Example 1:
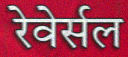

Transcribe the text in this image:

रेवेर्सल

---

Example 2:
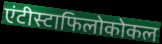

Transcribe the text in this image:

एंटीस्टाफिलोकोकल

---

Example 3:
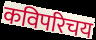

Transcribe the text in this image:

कविपरिचय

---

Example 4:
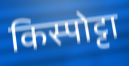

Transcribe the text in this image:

किस्पोट्टा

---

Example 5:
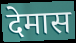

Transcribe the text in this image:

देमास